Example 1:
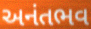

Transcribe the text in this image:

અનંતભવ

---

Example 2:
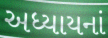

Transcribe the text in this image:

અધ્યાયનાં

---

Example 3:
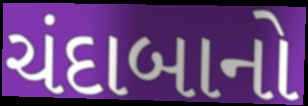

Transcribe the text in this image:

ચંદાબાનો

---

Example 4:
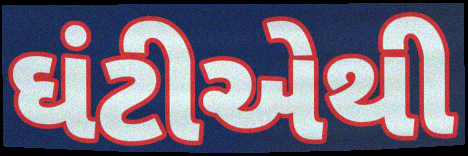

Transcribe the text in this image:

ઘંટીએથી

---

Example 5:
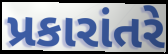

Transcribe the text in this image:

પ્રકારાંતરે